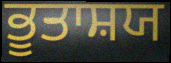
ਭੂਤਾਸ਼ਯ